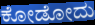
ಕೋಡೋದು